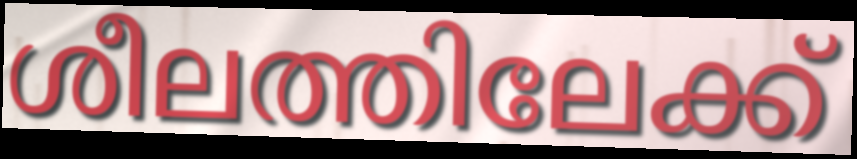
ശീലത്തിലേക്ക്